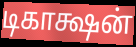
டிகாக்ஷன்